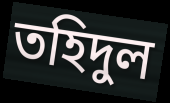
তহিদুল